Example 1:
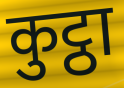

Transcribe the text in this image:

कुट्ठा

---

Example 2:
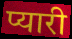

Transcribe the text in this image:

प्यारी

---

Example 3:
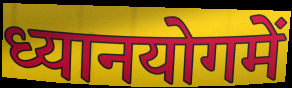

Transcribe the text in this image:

ध्यानयोगमें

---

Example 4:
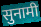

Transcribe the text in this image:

सुनामी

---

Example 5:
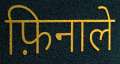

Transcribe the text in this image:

फ़िनाले